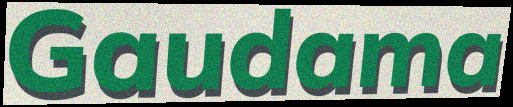
Gaudama